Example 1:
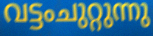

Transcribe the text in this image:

വട്ടംചുറ്റുന്നു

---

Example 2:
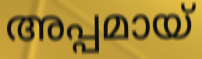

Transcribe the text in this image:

അപ്പമായ്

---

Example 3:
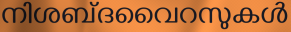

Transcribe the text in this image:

നിശബ്‌ദവൈറസുകൾ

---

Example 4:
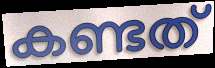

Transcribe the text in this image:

കണ്ടത്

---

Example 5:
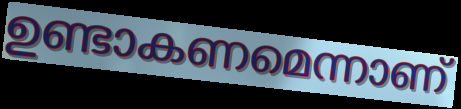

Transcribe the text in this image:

ഉണ്ടാകണമെന്നാണ്